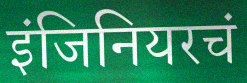
इंजिनियरचं